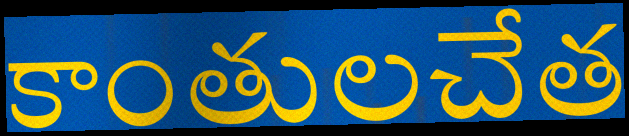
కాంతులచేత